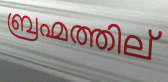
ബ്രഹ്മത്തില്